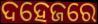
ଦହେଜରେ